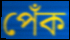
পেঁক